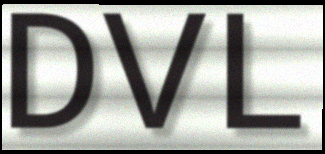
DVL